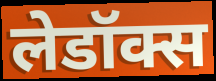
लेडॉक्स